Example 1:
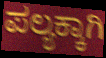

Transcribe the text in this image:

ಪಲ್ಯಕ್ಕಾಗಿ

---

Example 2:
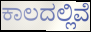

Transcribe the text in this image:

ಕಾಲದಲ್ಲಿವೆ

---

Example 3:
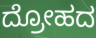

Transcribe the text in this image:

ದ್ರೋಹದ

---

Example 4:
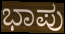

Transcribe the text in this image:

ಭಾಪು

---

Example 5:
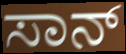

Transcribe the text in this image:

ಸಾನ್